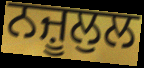
ਨਜ਼ੂਲੁਲ